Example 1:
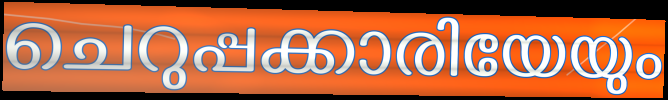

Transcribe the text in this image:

ചെറുപ്പക്കാരിയേയും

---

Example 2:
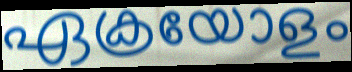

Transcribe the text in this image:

ഏക്രയോളം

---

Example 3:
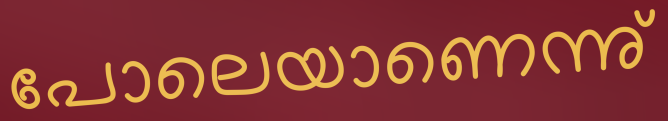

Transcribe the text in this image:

പോലെയാണെന്നു്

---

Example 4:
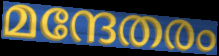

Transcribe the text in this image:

മന്ദേതരം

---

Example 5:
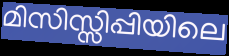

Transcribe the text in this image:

മിസിസ്സിപ്പിയിലെ